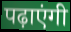
पढ़ाएंगी